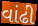
વાંઢી